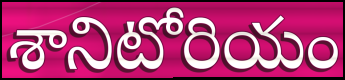
శానిటోరియం